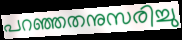
പറഞ്ഞതനുസരിച്ചു